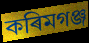
কৰিমগঞ্জ